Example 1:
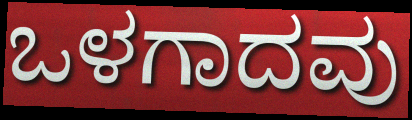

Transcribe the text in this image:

ಒಳಗಾದವು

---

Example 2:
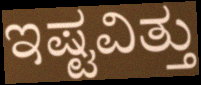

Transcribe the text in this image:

ಇಷ್ಟವಿತ್ತು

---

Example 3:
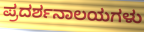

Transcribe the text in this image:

ಪ್ರದರ್ಶನಾಲಯಗಳು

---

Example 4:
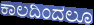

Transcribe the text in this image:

ಕಾಲದಿಂದಲೂ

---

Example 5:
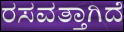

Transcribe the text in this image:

ರಸವತ್ತಾಗಿದೆ